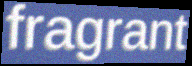
fragrant